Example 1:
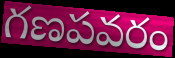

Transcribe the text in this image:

గణపవరం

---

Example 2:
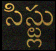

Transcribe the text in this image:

సిస్ట్లు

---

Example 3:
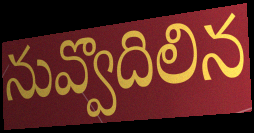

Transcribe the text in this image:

నువ్వొదిలిన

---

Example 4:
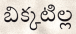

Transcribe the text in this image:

బిక్కటిల్ల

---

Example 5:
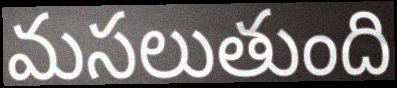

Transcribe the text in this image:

మసలుతుంది